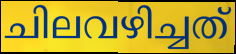
ചിലവഴിച്ചത്